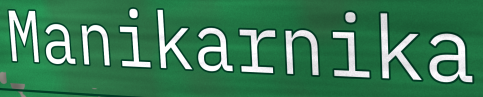
Manikarnika